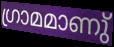
ഗ്രാമമാണു്